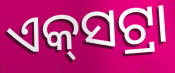
ଏକ୍‍ସଟ୍ରା